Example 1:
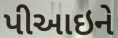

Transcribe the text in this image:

પીઆઇને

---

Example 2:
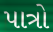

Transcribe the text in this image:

પાત્રો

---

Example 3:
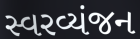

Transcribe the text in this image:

સ્વરવ્યંજન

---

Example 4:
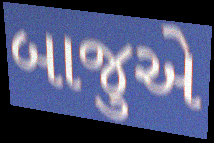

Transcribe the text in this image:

બાજુએ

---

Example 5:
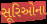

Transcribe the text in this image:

સૂરિઓના